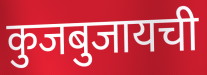
कुजबुजायची